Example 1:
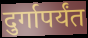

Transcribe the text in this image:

दुर्गापर्यंत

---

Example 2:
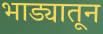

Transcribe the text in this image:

भाड्यातून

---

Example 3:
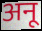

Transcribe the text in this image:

अनू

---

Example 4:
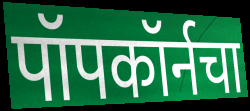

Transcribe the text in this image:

पॉपकॉर्नचा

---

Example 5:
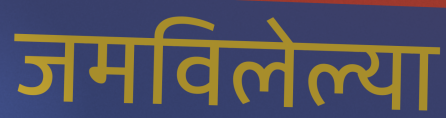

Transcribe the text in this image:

जमविलेल्या